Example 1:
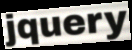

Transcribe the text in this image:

jquery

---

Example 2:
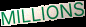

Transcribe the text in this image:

MILLIONS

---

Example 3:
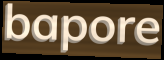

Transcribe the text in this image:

bapore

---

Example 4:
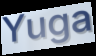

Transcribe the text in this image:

Yuga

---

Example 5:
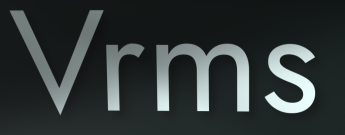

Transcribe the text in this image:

Vrms